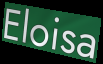
Eloisa